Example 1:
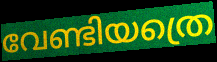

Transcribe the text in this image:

വേണ്ടിയത്രെ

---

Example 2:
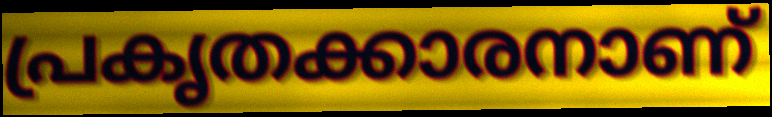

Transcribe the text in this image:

പ്രകൃതക്കാരനാണ്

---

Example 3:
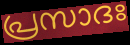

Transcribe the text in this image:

പ്രസാദഃ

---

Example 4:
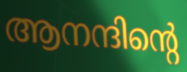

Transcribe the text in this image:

ആനന്ദിന്റെ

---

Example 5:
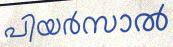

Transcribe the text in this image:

പിയർസാൽ